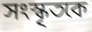
সংস্কৃতকে